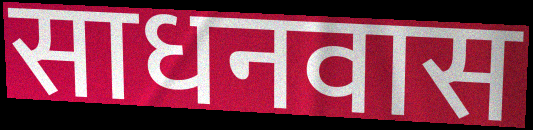
साधनवास